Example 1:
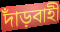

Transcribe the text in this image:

দাঁড়বাহী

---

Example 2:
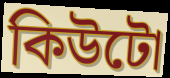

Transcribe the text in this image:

কিউটো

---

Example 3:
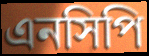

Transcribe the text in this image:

এনসিপি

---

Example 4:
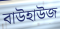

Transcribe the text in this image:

বাউহাউজ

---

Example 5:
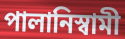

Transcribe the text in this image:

পালানিস্বামী